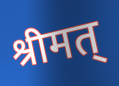
श्रीमत्